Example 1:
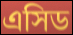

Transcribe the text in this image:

এসিড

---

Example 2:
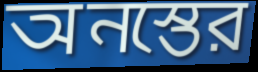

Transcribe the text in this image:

অনস্তের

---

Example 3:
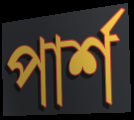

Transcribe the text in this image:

পার্শ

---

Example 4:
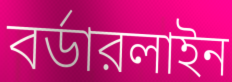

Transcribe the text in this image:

বর্ডারলাইন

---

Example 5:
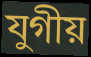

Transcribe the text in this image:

যুগীয়